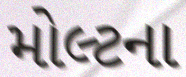
મોલ્ટના